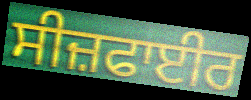
ਸੀਜ਼ਫਾਈਰ